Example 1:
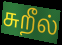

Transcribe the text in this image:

சுறீல்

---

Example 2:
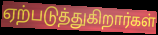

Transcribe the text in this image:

ஏற்படுத்துகிறார்கள்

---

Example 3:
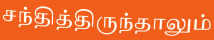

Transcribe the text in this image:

சந்தித்திருந்தாலும்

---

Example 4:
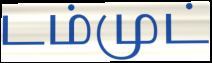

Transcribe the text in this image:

டம்முட்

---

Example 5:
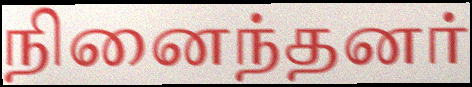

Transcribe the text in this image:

நினைந்தனர்